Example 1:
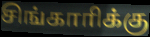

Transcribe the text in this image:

சிங்காரிக்கு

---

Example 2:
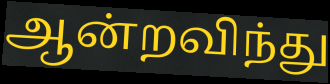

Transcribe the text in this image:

ஆன்றவிந்து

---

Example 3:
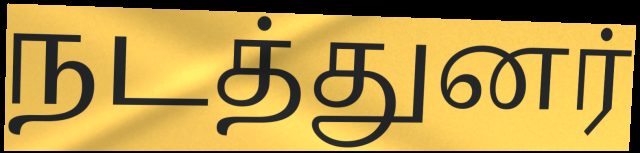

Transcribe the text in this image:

நடத்துனர்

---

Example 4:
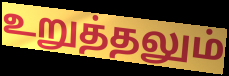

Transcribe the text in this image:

உறுத்தலும்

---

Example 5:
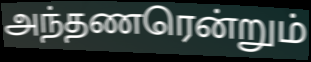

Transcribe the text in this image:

அந்தணரென்றும்